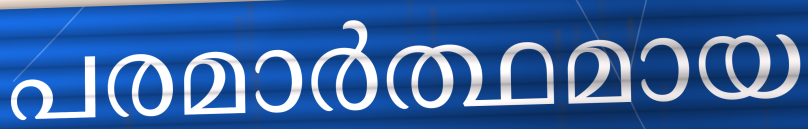
പരമാർത്ഥമായ